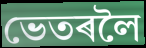
ভেতৰলৈ